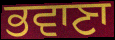
ਭਵਾਣਾ